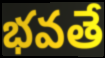
భవతే